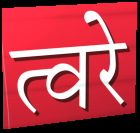
त्वरे